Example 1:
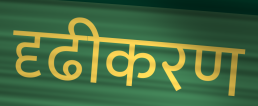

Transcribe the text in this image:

दृढीकरण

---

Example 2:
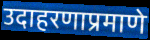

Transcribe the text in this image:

उदाहरणाप्रमाणे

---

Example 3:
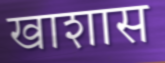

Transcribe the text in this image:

खाशास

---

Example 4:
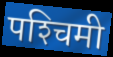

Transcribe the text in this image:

पश्चिमी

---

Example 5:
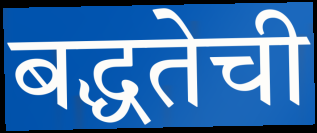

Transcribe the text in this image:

बद्धतेची